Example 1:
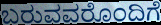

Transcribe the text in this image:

ಬರುವವರೊಂದಿಗೆ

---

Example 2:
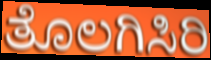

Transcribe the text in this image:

ತೊಲಗಿಸಿರಿ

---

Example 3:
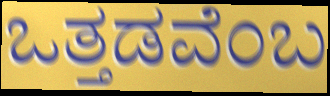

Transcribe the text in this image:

ಒತ್ತಡವೆಂಬ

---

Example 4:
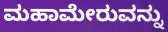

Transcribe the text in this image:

ಮಹಾಮೇರುವನ್ನು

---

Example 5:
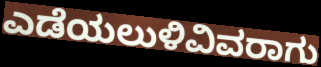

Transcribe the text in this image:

ಎಡೆಯಲುಳಿವಿವರಾಗು